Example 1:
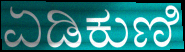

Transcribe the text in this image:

ಏಡಿಕುಣಿ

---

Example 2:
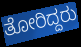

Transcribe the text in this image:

ತೋರಿದ್ದರು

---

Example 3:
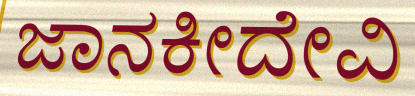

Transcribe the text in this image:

ಜಾನಕೀದೇವಿ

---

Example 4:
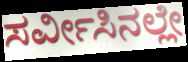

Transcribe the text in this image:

ಸರ್ವೀಸಿನಲ್ಲೇ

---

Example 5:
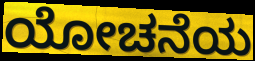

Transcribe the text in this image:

ಯೋಚನೆಯ